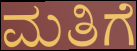
ಮತಿಗೆ